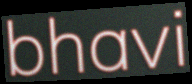
bhavi